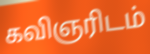
கவிஞரிடம்